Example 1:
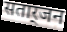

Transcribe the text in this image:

सतार्जन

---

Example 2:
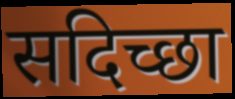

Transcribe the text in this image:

सदिच्छा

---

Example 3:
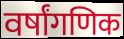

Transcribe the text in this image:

वर्षांगणिक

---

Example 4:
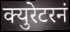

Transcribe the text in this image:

क्युरेटरनं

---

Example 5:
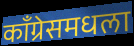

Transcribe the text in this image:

काँग्रेसमधला